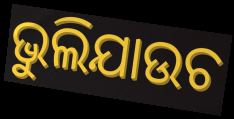
ଭୁଲିଯାଉଚ